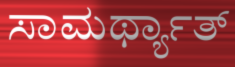
ಸಾಮರ್ಥ್ಯಾತ್